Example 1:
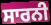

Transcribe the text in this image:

ਸਾਰਨੀ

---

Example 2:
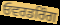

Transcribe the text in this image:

ਓਵਰਡਰਿੰਗ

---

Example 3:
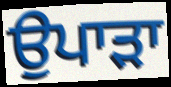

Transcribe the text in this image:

ਉਪਾੜਾ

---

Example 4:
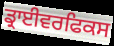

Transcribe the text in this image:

ਡ੍ਰਾਈਵਰਫਿਕਸ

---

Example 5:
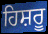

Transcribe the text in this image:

ਹਿਸ਼ਰੂ